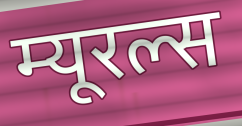
म्यूरल्स